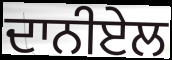
ਦਾਨੀਏਲ